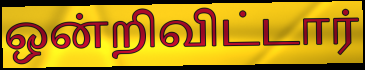
ஒன்றிவிட்டார்